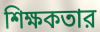
শিক্ষকতার